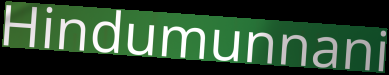
Hindumunnani